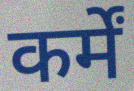
कर्में